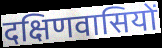
दक्षिणवासियों